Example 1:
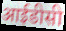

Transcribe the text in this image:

आईडीसी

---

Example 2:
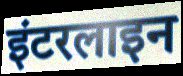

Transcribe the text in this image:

इंटरलाइन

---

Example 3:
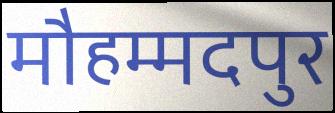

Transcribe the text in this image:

मौहम्मदपुर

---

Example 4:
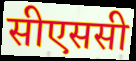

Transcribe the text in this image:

सीएससी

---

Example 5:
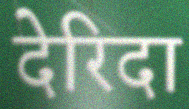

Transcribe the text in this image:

देरिदा